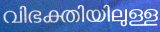
വിഭക്തിയിലുള്ള